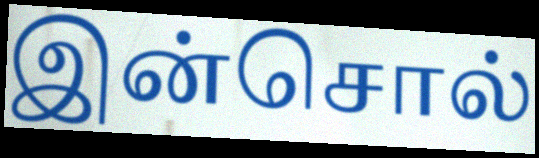
இன்சொல்